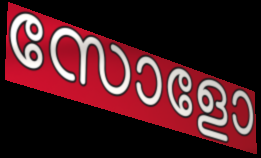
സോളോ